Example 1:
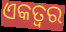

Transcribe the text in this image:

ଏକତ୍ବର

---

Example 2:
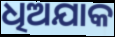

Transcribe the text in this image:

ଧିଅଯାକ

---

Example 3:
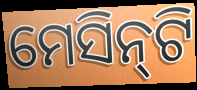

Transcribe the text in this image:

ମେସିନ୍‌ଟି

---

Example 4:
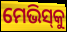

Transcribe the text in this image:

ମେଭିସ୍‌କୁ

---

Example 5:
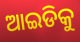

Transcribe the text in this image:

ଆଇଡିକୁ